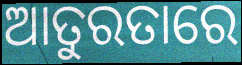
ଆତୁରତାରେ